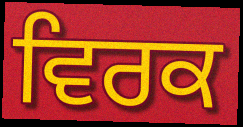
ਵਿਰਕ